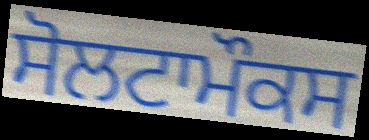
ਸੋਲਟਾਮੌਕਸ